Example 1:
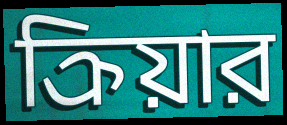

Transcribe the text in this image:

ক্রিয়ার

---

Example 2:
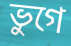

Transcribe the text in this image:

ভুগে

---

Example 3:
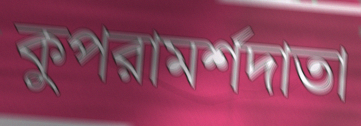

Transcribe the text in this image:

কুপরামর্শদাতা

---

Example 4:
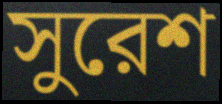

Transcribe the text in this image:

সুরেশ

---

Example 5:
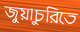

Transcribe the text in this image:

জুয়াচুরিতে